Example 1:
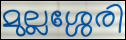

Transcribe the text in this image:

മുല്ലശ്ശേരി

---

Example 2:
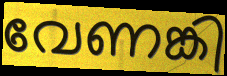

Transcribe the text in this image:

വേണങ്കി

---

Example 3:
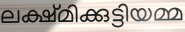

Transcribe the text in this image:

ലക്ഷ്മിക്കുട്ടിയമ്മ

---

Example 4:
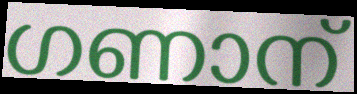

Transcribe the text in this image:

ഗണാന്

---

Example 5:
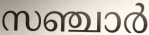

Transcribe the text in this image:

സഞ്ചാർ